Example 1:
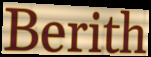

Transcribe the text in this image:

Berith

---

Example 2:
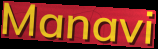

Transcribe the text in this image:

Manavi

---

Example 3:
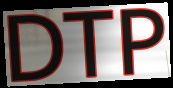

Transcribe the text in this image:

DTP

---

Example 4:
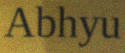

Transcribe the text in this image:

Abhyu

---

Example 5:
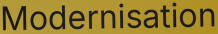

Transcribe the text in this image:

Modernisation